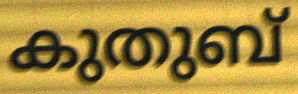
കുതുബ്